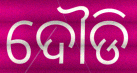
ଦୌଡି